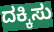
ದಕ್ಕಿಸು